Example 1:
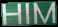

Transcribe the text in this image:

HIM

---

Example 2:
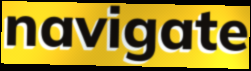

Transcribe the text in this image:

navigate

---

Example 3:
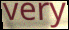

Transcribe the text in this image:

very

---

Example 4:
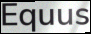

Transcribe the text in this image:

Equus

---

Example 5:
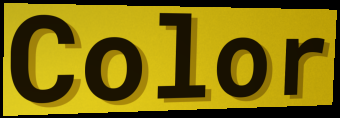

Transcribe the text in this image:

Color